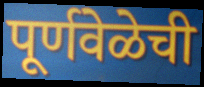
पूर्णवेळेची